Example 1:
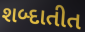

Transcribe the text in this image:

શબ્દાતીત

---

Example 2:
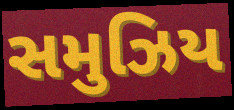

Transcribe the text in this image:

સમુઝિય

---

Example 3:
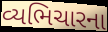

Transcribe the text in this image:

વ્યભિચારના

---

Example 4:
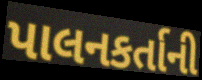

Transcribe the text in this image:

પાલનકર્તાની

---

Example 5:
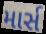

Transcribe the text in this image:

માર્સ